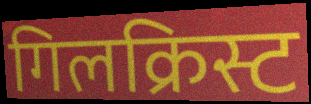
गिलक्रिस्‍ट